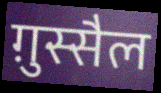
ग़ुस्सैल